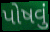
પોષવું